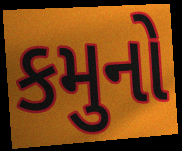
કમુનો